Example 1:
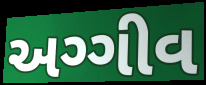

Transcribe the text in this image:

અગ્ગીવ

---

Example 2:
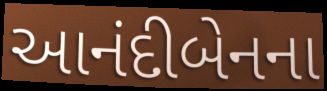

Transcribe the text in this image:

આનંદીબેનના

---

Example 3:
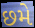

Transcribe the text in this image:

છમે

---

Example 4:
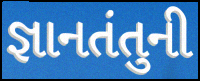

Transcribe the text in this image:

જ્ઞાનતંતુની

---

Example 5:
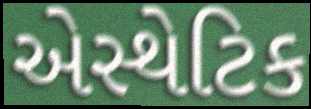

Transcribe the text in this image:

એસ્થેટિક